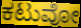
ಕಟುವೋ